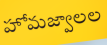
హోమజ్వాలల